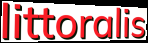
littoralis